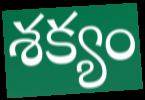
శక్యం